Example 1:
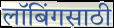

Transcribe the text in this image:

लॉबिंगसाठी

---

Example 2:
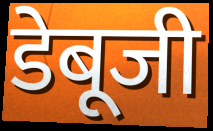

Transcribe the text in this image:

डेबूजी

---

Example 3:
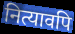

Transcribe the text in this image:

नित्यावपि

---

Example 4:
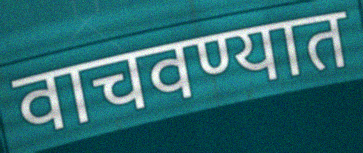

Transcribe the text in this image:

वाचवण्यात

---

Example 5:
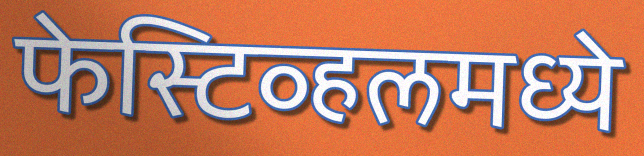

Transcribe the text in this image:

फेस्टिव्हलमध्ये